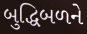
બુદ્ધિબળને